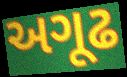
અગૂઢ